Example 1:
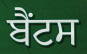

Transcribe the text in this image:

ਬੈਂਟਸ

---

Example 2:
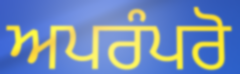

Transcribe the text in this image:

ਅਪਰੰਪਰੋ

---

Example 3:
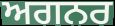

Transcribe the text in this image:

ਅਗਨਰ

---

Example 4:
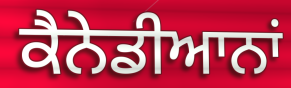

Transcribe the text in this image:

ਕੈਨੇਡੀਆਨਾਂ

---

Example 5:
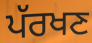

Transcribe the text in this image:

ਪੱਰਖਣ